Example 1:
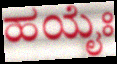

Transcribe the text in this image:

ಹಯೈಃ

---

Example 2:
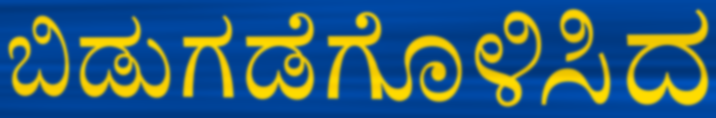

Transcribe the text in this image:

ಬಿಡುಗಡೆಗೊಳಿಸಿದ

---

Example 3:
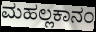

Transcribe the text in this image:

ಮಹಲ್ಲಕಾನಂ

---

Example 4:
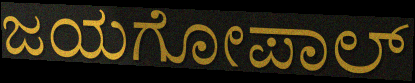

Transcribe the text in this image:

ಜಯಗೋಪಾಲ್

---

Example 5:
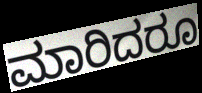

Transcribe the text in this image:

ಮಾರಿದರೂ